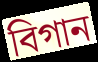
বিগান